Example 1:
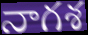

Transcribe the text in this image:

నాగశ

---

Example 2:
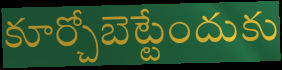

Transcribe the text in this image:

కూర్చోబెట్టేందుకు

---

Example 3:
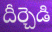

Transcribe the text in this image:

దీర్చెడి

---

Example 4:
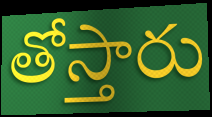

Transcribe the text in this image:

తోస్తారు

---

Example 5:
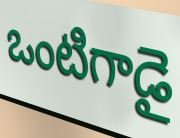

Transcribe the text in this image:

ఒంటిగాడై